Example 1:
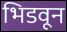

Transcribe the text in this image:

भिडवून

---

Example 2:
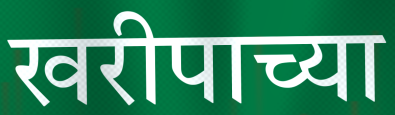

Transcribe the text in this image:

खरीपाच्या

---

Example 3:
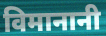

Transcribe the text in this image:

विमानानी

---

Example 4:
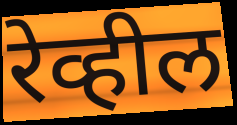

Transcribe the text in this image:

रेव्हील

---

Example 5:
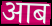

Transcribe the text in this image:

आब